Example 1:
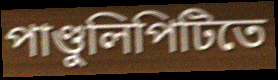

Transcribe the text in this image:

পাণ্ডুলিপিটিতে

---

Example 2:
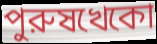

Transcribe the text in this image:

পুরুষখেকো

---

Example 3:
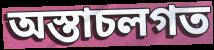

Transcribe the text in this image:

অস্তাচলগত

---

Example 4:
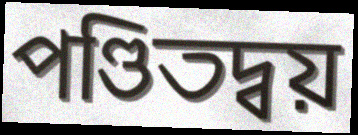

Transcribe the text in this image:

পণ্ডিতদ্বয়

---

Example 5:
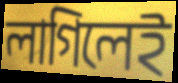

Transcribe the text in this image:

লাগিলেই